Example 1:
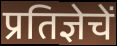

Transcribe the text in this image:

प्रतिज्ञेचें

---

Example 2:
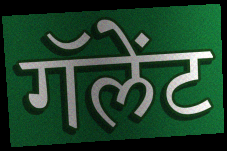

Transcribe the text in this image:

गॅलेंट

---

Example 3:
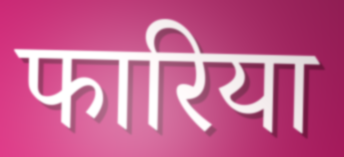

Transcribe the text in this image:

फारिया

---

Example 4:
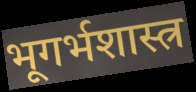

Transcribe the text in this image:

भूगर्भशास्त्र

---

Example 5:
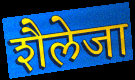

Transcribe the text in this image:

शैलेजा